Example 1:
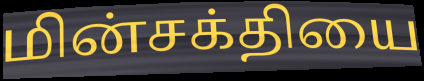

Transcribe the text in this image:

மின்சக்தியை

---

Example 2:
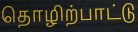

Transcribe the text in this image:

தொழிற்பாட்டு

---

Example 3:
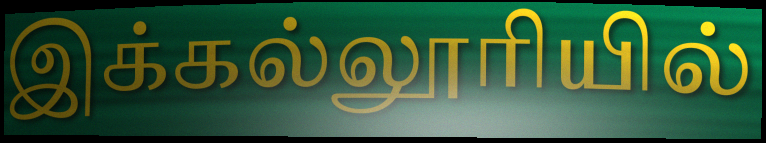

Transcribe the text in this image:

இக்கல்லூரியில்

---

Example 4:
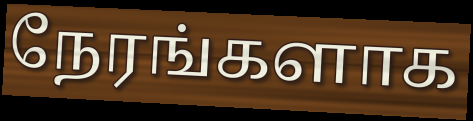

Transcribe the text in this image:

நேரங்களாக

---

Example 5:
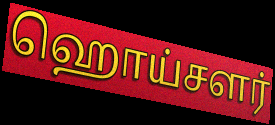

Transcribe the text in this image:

ஹொய்சளர்